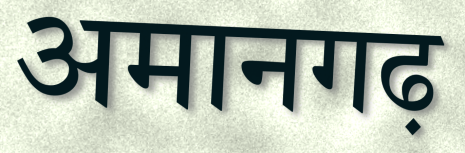
अमानगढ़